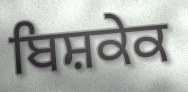
ਬਿਸ਼ਕੇਕ